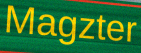
Magzter